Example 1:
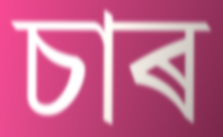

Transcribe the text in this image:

চাৰ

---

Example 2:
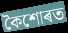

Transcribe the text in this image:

কৈশোৰত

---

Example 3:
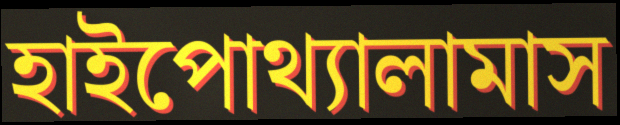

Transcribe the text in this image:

হাইপোথ্যালামাস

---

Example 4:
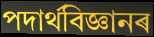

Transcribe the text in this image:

পদাৰ্থবিজ্ঞানৰ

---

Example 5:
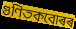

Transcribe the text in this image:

গুণিতকবোৰৰ